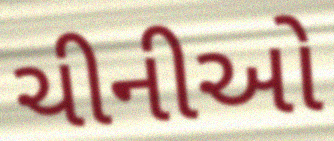
ચીનીઓ